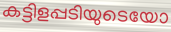
കട്ടിളപ്പടിയുടെയോ